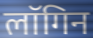
लॉगिन